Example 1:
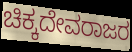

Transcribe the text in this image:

ಚಿಕ್ಕದೇವರಾಜರ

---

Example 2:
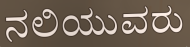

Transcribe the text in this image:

ನಲಿಯುವರು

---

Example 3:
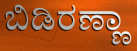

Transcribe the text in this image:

ಬಿಡಿರಣ್ಣಾ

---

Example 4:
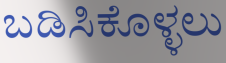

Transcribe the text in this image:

ಬಡಿಸಿಕೊಳ್ಳಲು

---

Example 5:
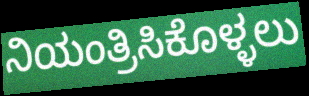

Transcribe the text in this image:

ನಿಯಂತ್ರಿಸಿಕೊಳ್ಳಲು